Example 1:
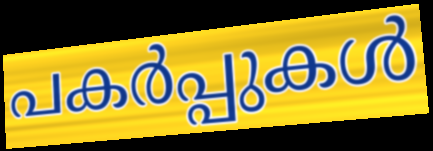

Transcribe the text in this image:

പകർപ്പുകൾ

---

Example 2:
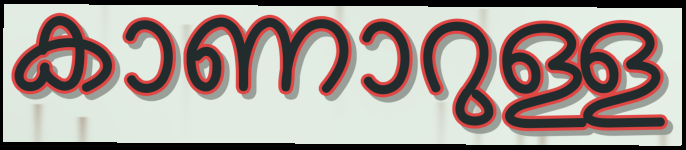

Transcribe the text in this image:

കാണാറുള്ള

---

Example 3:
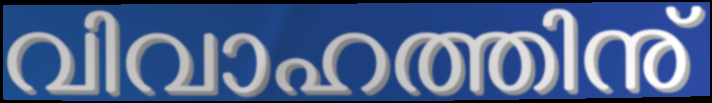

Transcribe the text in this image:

വിവാഹത്തിനു്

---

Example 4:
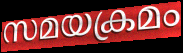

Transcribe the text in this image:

സമയക്രമം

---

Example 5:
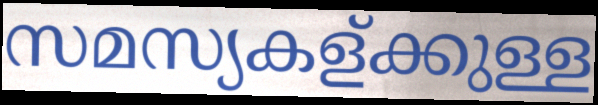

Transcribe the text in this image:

സമസ്യകള്ക്കുള്ള